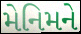
મેનિમને